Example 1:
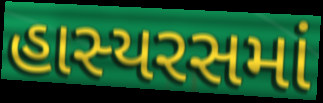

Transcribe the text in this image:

હાસ્યરસમાં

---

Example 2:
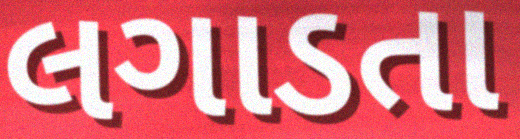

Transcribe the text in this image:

લગાડતા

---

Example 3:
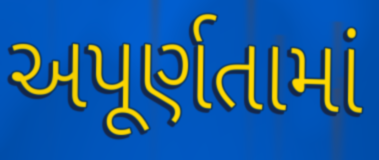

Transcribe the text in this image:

અપૂર્ણતામાં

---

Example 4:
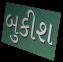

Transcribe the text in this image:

બુકીશ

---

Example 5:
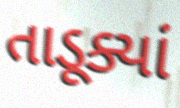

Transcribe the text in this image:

તાડૂક્યાં